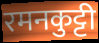
रमनकुट्टी